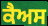
ਕੈਅਸ